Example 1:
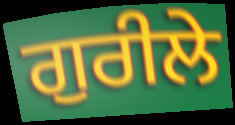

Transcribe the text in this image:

ਗੁਰੀਲੇ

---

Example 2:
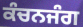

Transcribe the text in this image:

ਕੰਚਨਜੰਗ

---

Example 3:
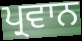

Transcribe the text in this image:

ਪ੍ਰਵਾਨ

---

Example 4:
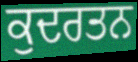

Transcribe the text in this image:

ਕੁਦਰਤਨ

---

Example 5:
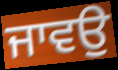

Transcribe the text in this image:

ਜਾਵਉ